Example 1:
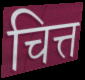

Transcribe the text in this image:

चित्त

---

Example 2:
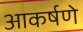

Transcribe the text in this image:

आकर्षणे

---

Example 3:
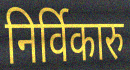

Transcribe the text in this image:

निर्विकारु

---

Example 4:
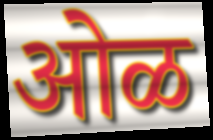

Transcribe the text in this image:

ओळ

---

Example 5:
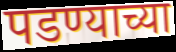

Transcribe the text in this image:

पडण्याच्या